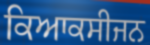
ਕਿਆਕਸੀਜਨ